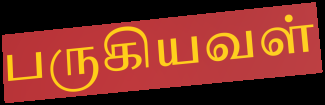
பருகியவள்